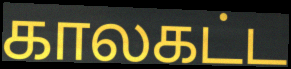
காலகட்ட